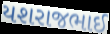
યશરાજભાઈ